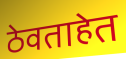
ठेवताहेत